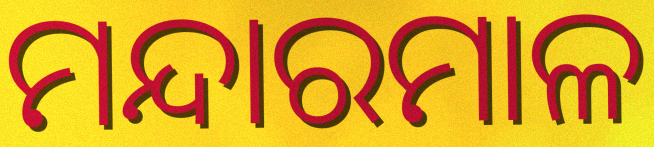
ମନ୍ଦାରମାଳ